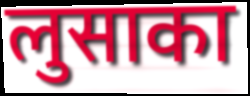
लुसाका